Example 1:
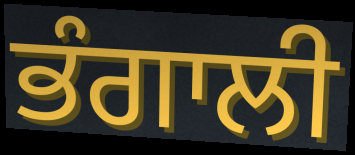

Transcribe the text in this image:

ਭੰਗਾਲੀ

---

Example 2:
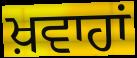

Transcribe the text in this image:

ਖ਼ਵਾਹਾਂ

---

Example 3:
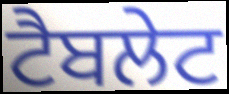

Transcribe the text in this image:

ਟੈਬਲੇਟ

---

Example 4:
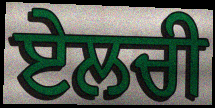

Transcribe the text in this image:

ਏਲਚੀ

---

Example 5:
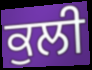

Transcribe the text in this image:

ਕੁਲੀ